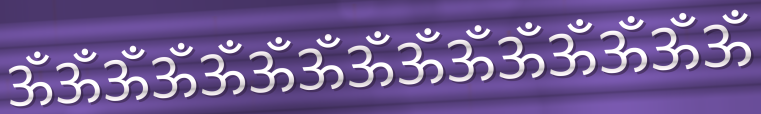
ॐॐॐॐॐॐॐॐॐॐॐॐॐॐॐ